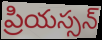
ప్రియస్సన్